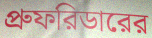
প্রুফরিডারের